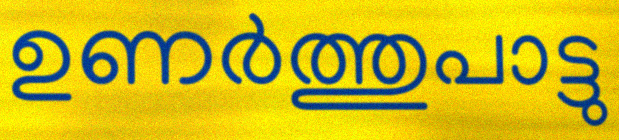
ഉണർത്തുപാട്ടു